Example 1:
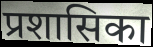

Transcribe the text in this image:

प्रशासिका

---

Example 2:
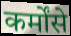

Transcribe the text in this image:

कर्मोंसे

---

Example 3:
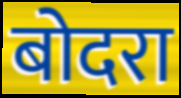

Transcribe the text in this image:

बोदरा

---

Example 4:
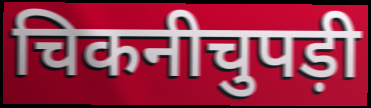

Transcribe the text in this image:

चिकनीचुपड़ी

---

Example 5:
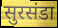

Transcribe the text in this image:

सुरसंडा